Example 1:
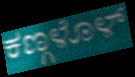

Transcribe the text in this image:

ಕಣ್ಗಳೊಳ್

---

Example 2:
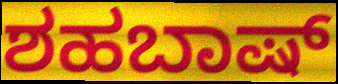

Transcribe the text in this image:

ಶಹಬಾಷ್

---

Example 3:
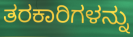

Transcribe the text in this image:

ತರಕಾರಿಗಳನ್ನು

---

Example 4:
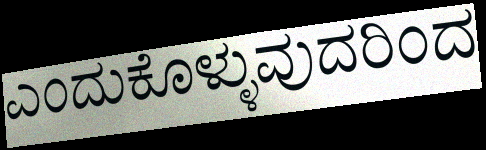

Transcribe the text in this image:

ಎಂದುಕೊಳ್ಳುವುದರಿಂದ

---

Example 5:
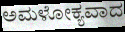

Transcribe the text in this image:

ಅಮಳೋಕ್ಯವಾದ